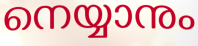
നെയ്യാനും